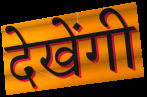
देखेंगी